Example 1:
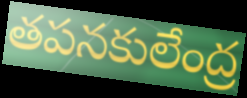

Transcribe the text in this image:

తపనకులేంద్ర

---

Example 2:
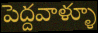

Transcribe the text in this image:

పెద్దవాళ్ళూ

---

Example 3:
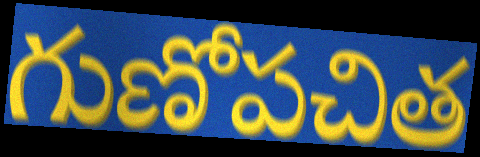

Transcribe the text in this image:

గుణోపచిత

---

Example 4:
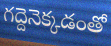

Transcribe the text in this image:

గద్దెనెక్కడంతో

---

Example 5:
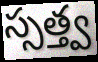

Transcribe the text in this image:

స్సత్త్వ